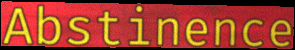
Abstinence